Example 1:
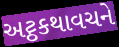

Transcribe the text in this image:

અટ્ઠકથાવચને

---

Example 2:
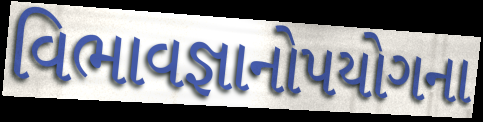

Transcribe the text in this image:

વિભાવજ્ઞાનોપયોગના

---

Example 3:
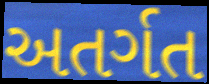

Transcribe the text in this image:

અતર્ગત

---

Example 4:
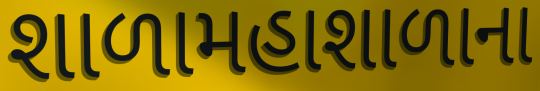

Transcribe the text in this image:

શાળામહાશાળાના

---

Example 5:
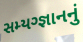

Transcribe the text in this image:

સમ્યગ્જ્ઞાનનું